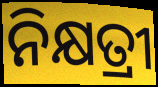
ନିକ୍ଷତ୍ରୀ